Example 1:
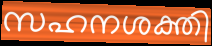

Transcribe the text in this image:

സഹനശക്തി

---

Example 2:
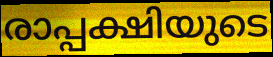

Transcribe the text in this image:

രാപ്പക്ഷിയുടെ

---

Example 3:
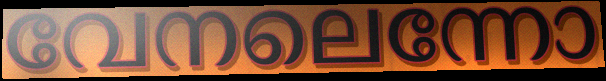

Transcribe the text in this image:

വേനലെന്നോ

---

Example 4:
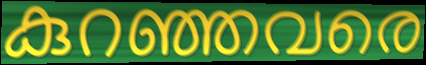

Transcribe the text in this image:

കുറഞ്ഞവരെ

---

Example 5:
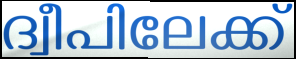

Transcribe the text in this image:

ദ്വീപിലേക്ക്